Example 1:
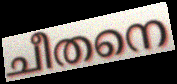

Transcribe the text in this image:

ചീതനെ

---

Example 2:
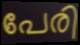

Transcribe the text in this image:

പേരി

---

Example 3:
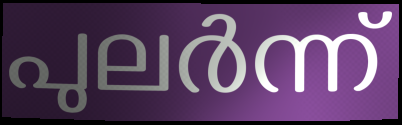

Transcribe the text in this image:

പുലർന്ന്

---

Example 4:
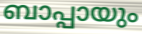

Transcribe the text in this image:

ബാപ്പായും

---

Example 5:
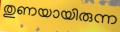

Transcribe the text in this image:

തുണയായിരുന്ന